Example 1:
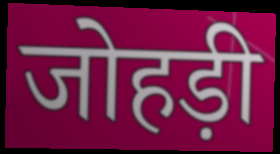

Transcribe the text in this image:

जोहड़ी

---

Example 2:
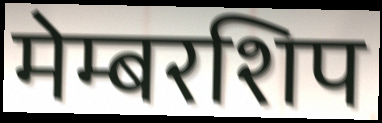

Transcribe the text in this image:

मेम्बरशिप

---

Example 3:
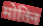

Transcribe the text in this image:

मोतिन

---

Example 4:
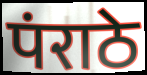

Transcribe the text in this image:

पंराठे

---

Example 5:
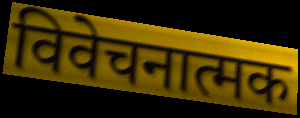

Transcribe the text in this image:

विवेचनात्मक